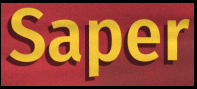
Saper